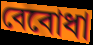
বেবোধা